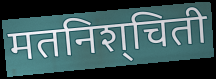
मतनिश्चिती